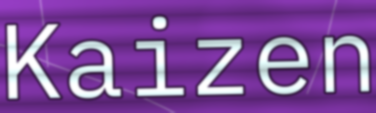
Kaizen